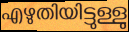
എഴുതിയിട്ടുള്ളു